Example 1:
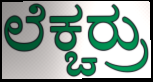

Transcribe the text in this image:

ಲೆಕ್ಚರ್ರು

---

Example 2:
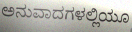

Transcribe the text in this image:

ಅನುವಾದಗಳಲ್ಲಿಯೂ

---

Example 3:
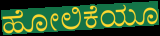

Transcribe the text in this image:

ಹೋಲಿಕೆಯೂ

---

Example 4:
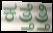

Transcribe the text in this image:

ಕತ್ತೆತ್ತಿ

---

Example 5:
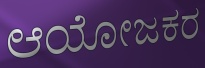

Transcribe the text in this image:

ಆಯೋಜಕರ